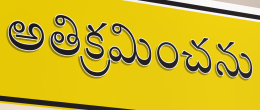
అతిక్రమించను